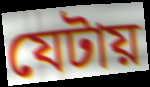
যেটায়